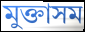
মুক্তাসম